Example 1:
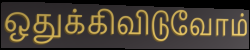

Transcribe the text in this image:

ஒதுக்கிவிடுவோம்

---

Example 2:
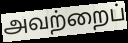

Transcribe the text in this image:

அவற்றைப்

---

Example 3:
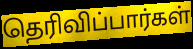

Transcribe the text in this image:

தெரிவிப்பார்கள்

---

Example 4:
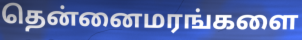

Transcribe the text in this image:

தென்னைமரங்களை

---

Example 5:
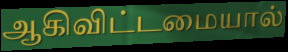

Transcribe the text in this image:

ஆகிவிட்டமையால்